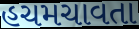
હચમચાવતા